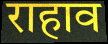
राहाव